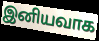
இனியவாக